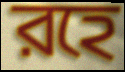
রহে